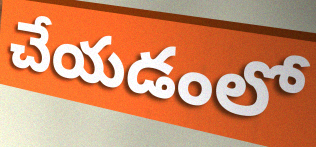
చేయడంలో